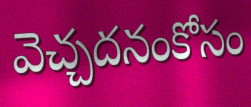
వెచ్చదనంకోసం